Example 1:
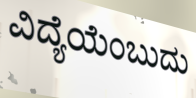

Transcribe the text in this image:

ವಿದ್ಯೆಯೆಂಬುದು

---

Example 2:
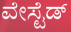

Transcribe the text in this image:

ವೇಸ್ಟೆಡ್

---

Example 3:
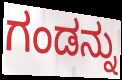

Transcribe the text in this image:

ಗಂಡನ್ನು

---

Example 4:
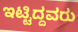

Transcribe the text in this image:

ಇಟ್ಟಿದ್ದವರು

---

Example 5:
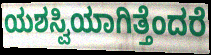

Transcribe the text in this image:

ಯಶಸ್ವಿಯಾಗಿತ್ತೆಂದರೆ